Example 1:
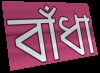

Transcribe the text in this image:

বাঁধা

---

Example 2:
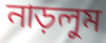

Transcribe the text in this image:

নাড়লুম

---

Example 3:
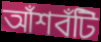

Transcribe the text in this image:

আঁশবঁটি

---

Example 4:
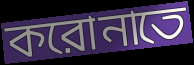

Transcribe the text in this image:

করোনাতে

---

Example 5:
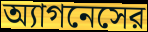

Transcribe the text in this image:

অ্যাগনেসের